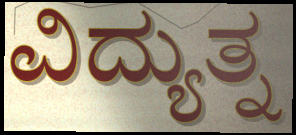
ವಿದ್ಯುತ್ನ